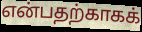
என்பதற்காகக்